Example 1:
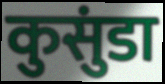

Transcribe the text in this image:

कुसुंडा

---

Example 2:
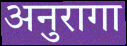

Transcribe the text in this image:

अनुरागा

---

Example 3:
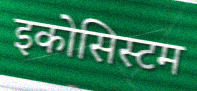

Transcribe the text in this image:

इकोसिस्टम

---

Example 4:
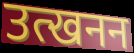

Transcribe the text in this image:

उत्‍खनन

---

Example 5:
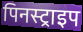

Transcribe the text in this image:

पिनस्ट्राइप